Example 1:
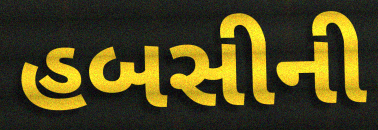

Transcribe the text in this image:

હબસીની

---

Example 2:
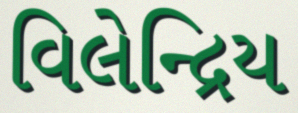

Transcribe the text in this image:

વિલેન્દ્રિય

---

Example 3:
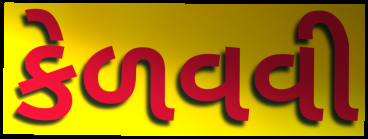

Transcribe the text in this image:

કેળવવી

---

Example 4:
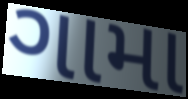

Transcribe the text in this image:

ગામા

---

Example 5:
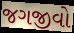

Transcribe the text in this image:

જગજીવો